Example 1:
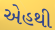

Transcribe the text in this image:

એહથી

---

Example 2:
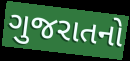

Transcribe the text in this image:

ગુજરાતનો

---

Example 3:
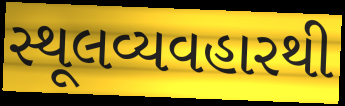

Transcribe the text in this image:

સ્થૂલવ્યવહારથી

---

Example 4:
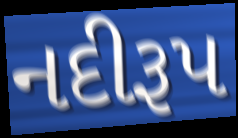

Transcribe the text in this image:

નદીરૂપ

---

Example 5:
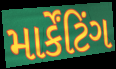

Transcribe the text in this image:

માર્કેંટિંગ